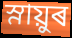
স্নায়ুৰ